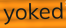
yoked